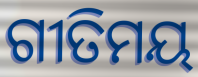
ଗୀତିମୟ